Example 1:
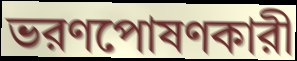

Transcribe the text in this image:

ভরণপোষণকারী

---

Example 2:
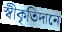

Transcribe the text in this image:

স্বীকৃতিদানে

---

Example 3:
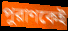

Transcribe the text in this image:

পুরাণকেই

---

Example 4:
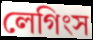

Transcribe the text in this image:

লেগিংস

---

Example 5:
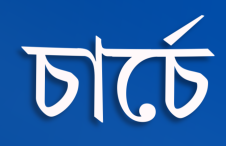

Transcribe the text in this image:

চার্চে